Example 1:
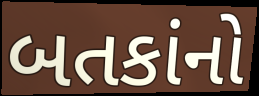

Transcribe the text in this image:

બતકાંનો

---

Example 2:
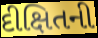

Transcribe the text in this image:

દીક્ષિતની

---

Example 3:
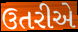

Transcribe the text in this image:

ઉતરીએ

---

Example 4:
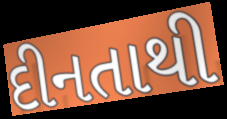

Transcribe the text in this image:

દીનતાથી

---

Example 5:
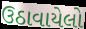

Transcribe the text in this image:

ઉઠાવાયેલો